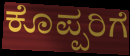
ಕೊಪ್ಪರಿಗೆ